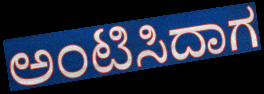
ಅಂಟಿಸಿದಾಗ